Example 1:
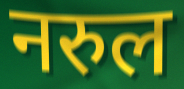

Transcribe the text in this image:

नरुल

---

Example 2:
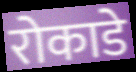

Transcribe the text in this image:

रोकाडे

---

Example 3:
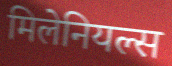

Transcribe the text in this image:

मिलेनियल्स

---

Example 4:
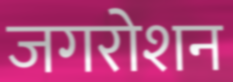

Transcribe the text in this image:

जगरोशन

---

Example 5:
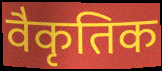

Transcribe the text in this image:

वैकृतिक